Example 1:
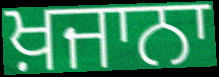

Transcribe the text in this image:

ਖ਼ਜਾਨਾ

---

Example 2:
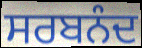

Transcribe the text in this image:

ਸਰਬਨੰਦ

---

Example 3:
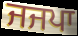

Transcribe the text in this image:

ਜਜਪਾ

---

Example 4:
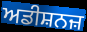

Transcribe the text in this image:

ਅਡੀਸ਼ਨਜ਼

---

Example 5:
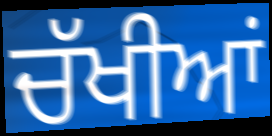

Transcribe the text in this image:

ਚੱਖੀਆਂ